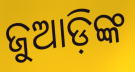
ଜୁଆଡ଼ିଙ୍କ